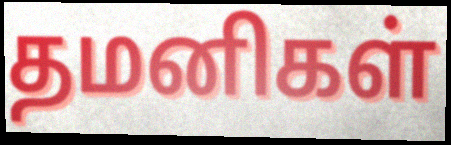
தமனிகள்